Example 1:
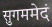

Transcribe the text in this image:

सुगममेदं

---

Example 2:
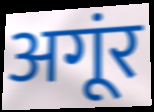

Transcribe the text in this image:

अगूंर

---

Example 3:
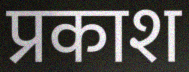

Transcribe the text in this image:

प्रकाश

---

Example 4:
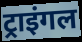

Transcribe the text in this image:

ट्राइंगल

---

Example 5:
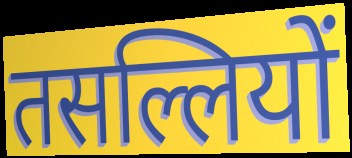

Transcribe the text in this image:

तसल्लियों